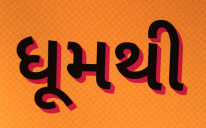
ધૂમથી